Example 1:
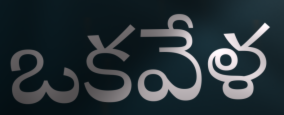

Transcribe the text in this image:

ఒకవేళ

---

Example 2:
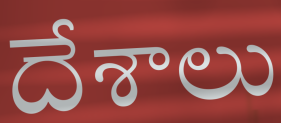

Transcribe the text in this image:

దేశాలు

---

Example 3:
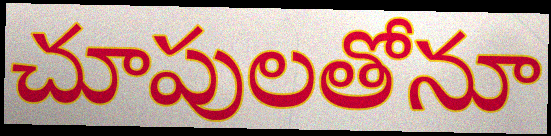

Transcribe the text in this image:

చూపులతోనూ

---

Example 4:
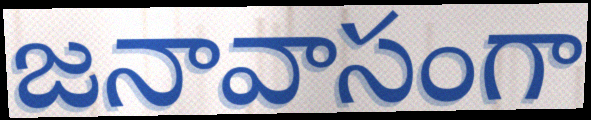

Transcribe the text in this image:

జనావాసంగా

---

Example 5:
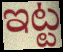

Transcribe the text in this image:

ఇట్ట